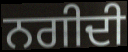
ਨਗੀਦੀ